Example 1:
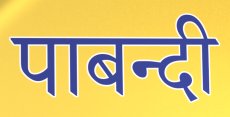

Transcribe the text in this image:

पाबन्दी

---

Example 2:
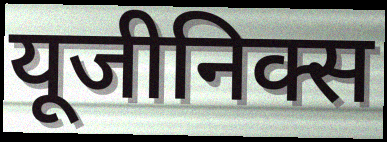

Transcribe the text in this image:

यूजीनिक्स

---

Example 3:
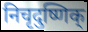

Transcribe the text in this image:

निचृदुष्णिक्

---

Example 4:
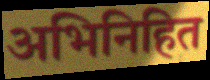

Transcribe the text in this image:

अभिनिहित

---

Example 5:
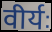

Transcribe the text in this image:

वीर्यः